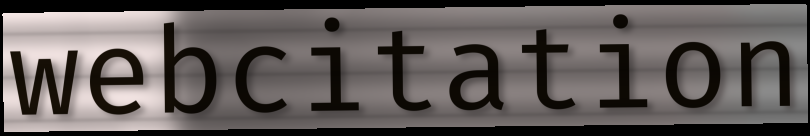
webcitation